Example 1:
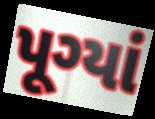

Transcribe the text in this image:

પૂગ્યાં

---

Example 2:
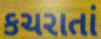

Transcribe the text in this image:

કચરાતાં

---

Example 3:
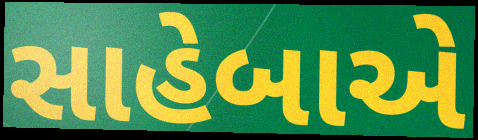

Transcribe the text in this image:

સાહેબાએ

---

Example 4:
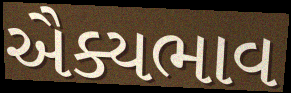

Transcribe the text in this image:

ઐક્યભાવ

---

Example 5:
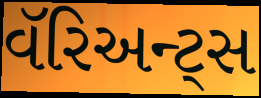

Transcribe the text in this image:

વૅરિઅન્ટ્સ